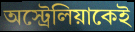
অস্ট্রেলিয়াকেই